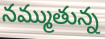
నమ్ముతున్న